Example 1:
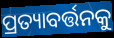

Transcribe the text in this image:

ପ୍ରତ୍ୟାବର୍ତ୍ତନକୁ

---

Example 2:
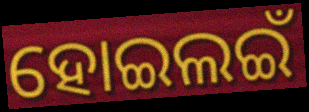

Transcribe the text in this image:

ହୋଇଲଇଁ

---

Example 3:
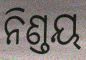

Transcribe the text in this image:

ନିଣ୍ଡୟ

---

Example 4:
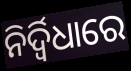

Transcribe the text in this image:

ନିର୍ଦ୍ୱିଧାରେ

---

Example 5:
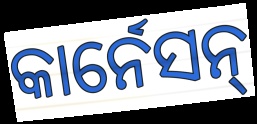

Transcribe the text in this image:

କାର୍ନେସନ୍